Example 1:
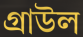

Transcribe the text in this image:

গ্রাউল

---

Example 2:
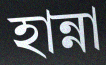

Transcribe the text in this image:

হান্না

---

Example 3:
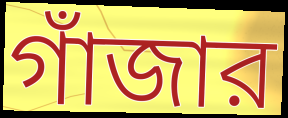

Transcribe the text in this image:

গাঁজার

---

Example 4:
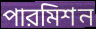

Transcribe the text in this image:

পারমিশন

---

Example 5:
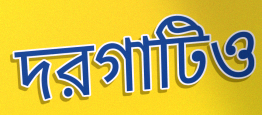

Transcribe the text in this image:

দরগাটিও